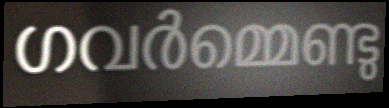
ഗവർമ്മെണ്ടു